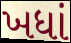
ખધાં